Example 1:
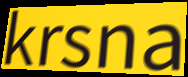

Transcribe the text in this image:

krsna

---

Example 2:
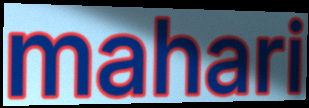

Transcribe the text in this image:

mahari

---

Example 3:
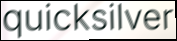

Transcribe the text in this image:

quicksilver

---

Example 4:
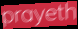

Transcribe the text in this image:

prayeth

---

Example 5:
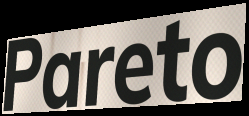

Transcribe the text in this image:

Pareto